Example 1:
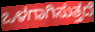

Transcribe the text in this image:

ಒಳಗಾಗಿಸುತ್ತದೆ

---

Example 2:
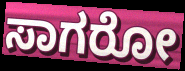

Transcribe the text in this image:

ಸಾಗರೋ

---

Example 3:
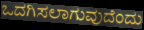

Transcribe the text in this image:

ಒದಗಿಸಲಾಗುವುದೆಂದು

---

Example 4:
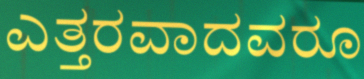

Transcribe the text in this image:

ಎತ್ತರವಾದವರೂ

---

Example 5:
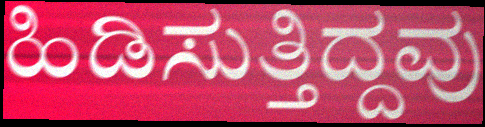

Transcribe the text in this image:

ಹಿಡಿಸುತ್ತಿದ್ದವು